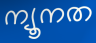
ന്യൂനത